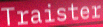
Traister